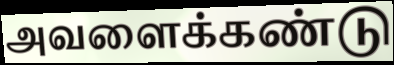
அவளைக்கண்டு